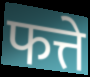
फत्ते